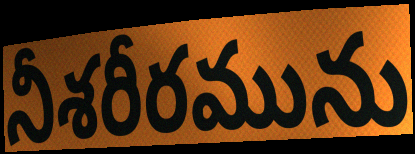
నీశరీరమును